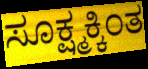
ಸೂಕ್ಷ್ಮಕ್ಕಿಂತ